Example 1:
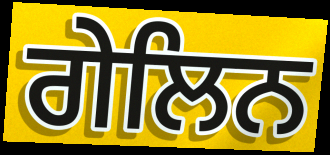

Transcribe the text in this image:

ਗੇਲਿਨ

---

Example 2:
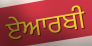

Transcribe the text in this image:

ਏਆਰਬੀ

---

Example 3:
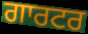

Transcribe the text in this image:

ਗਾਰਟਰ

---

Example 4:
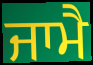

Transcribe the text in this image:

ਜਾਮੈ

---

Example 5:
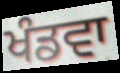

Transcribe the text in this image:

ਖੰਡਵਾ